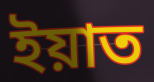
ইয়াত